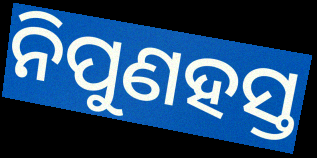
ନିପୁଣହସ୍ତ